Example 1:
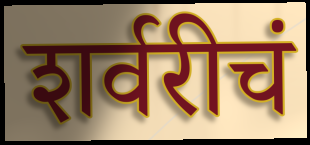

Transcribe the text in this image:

शर्वरीचं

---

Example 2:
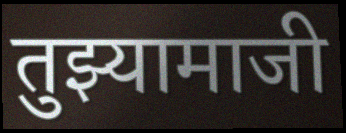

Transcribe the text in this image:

तुझ्यामाजी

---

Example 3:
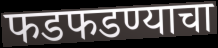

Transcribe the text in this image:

फडफडण्याचा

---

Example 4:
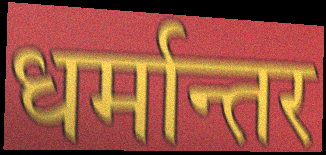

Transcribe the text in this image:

धर्मान्तर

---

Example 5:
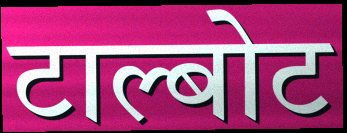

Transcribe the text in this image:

टाल्बोट